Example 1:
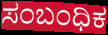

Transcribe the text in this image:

ಸಂಬಂಧಿಕ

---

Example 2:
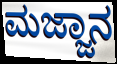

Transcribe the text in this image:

ಮಜ್ಜಾನ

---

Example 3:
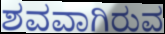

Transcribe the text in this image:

ಶವವಾಗಿರುವ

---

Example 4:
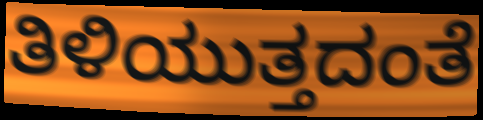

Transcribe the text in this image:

ತಿಳಿಯುತ್ತದಂತೆ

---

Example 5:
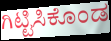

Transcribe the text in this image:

ಗಿಟ್ಟಿಸಿಕೊಂಡ